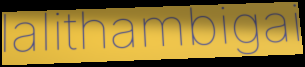
lalithambigai